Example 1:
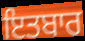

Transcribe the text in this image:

ਇਤਬਾਰ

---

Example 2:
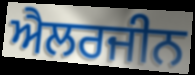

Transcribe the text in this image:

ਐਲਰਜੀਨ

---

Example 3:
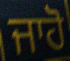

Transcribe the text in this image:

ਜਾਹੋ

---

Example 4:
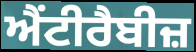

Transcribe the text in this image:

ਐਂਟੀਰੈਬੀਜ਼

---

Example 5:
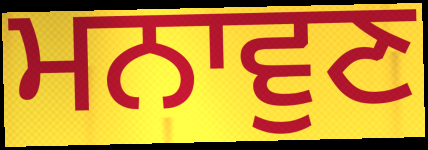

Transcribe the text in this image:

ਮਨਾਵੁਣ